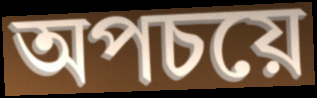
অপচয়ে